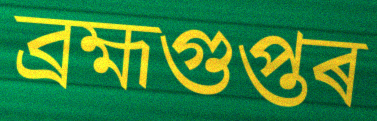
ব্ৰহ্মগুপ্তৰ